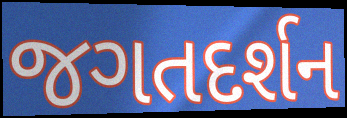
જગતદર્શન